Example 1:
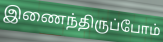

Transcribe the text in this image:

இணைந்திருப்போம்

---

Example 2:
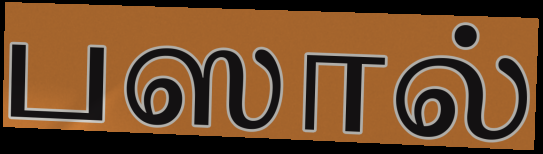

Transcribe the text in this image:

பஸால்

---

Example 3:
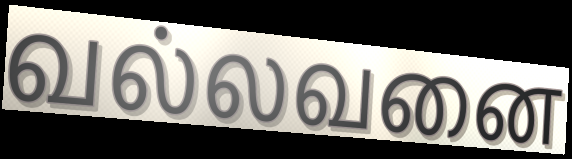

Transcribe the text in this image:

வல்லவனை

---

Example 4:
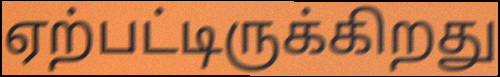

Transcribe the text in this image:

ஏற்பட்டிருக்கிறது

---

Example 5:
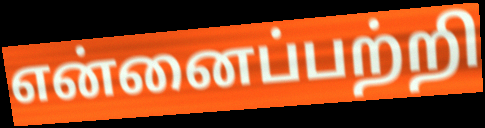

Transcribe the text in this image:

என்னைப்பற்றி